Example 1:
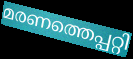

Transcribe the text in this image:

മരണത്തെപ്പറ്റി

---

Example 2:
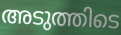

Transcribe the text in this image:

അടുത്തിടെ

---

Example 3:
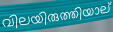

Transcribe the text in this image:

വിലയിരുത്തിയാല്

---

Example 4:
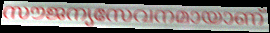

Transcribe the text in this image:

സൗജന്യസേവനമായാണ്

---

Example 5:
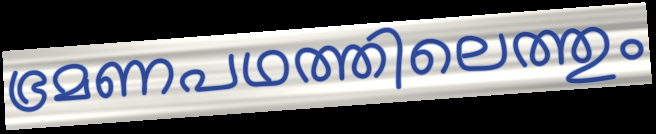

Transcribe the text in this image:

ഭ്രമണപഥത്തിലെത്തും